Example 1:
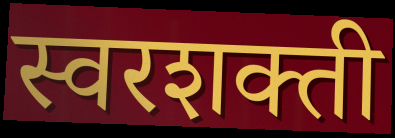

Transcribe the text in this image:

स्वरशक्ती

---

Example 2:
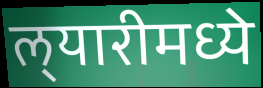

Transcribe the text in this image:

ल्यारीमध्ये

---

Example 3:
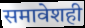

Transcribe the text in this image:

समावेशही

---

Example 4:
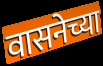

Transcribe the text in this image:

वासनेच्या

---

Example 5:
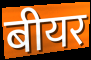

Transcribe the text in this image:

बीयर